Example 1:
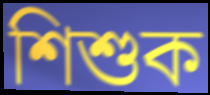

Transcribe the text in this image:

শিশুক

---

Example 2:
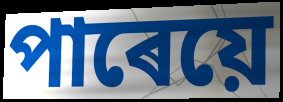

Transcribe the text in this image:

পাৰেয়ে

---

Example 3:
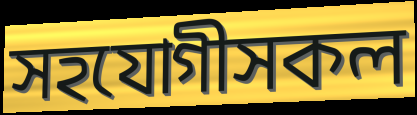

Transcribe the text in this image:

সহযোগীসকল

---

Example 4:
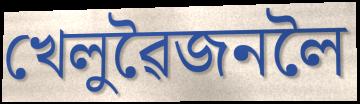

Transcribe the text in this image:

খেলুৱৈজনলৈ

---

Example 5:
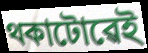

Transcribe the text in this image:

থকাটোৱেই